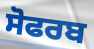
ਸੋਫਰਬ